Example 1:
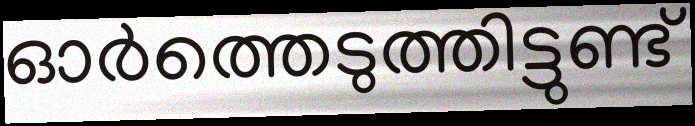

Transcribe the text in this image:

ഓർത്തെടുത്തിട്ടുണ്ട്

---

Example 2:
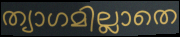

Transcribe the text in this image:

ത്യാഗമില്ലാതെ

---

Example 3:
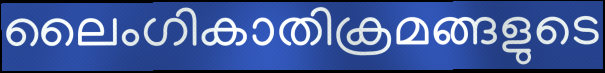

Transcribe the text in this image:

ലൈംഗികാതിക്രമങ്ങളുടെ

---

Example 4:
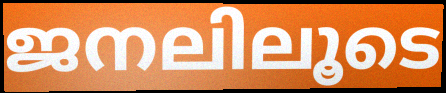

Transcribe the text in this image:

ജനലിലൂടെ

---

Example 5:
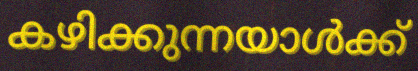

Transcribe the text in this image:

കഴിക്കുന്നയാൾക്ക്